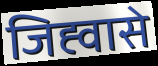
जिह्वासे